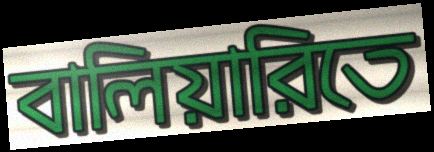
বালিয়ারিতে